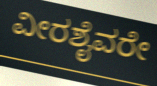
ವೀರಶೈವರೇ